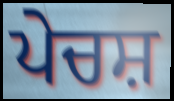
ਪੇਚਸ਼